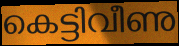
കെട്ടിവീണു